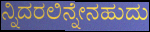
ನ್ನಿದರಲಿನ್ನೇನಹುದು